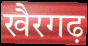
खैरगढ़